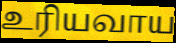
உரியவாய